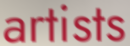
artists